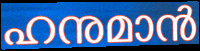
ഹനുമാൻ